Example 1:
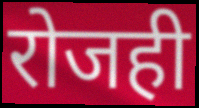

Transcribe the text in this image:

रोजही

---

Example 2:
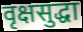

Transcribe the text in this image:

वृक्षसुद्धा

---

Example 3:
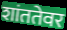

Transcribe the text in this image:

शांततेवर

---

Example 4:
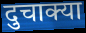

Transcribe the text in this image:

दुचाक्या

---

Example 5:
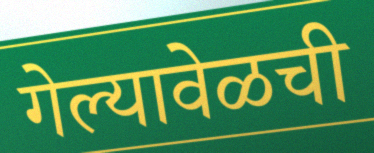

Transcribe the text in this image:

गेल्यावेळची